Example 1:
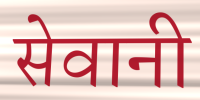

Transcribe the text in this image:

सेवानी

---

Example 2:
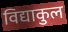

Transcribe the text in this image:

विद्याकुल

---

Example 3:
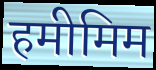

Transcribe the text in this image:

हमीमिम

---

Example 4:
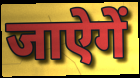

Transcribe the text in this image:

जाऐगें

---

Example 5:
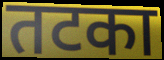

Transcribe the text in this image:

तटका